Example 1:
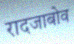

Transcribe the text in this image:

रादजाबोव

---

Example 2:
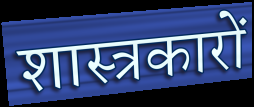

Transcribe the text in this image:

शास्त्रकारों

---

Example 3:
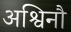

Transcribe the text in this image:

अश्विनौ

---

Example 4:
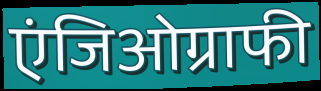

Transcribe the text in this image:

एंजिओग्राफी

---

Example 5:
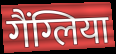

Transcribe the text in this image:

गैंग्लिया